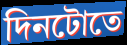
দিনটোতে